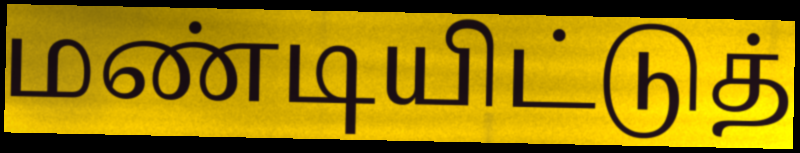
மண்டியிட்டுத்